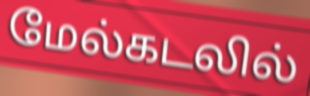
மேல்கடலில்